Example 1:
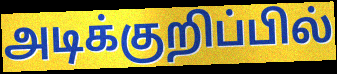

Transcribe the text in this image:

அடிக்குறிப்பில்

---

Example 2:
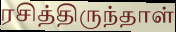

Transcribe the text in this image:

ரசித்திருந்தாள்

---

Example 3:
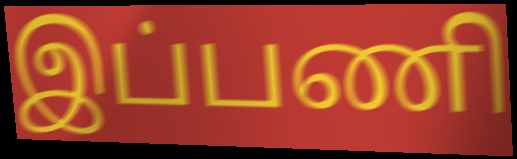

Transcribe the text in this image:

இப்பணி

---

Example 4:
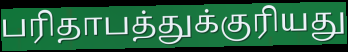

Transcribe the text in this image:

பரிதாபத்துக்குரியது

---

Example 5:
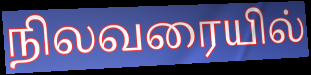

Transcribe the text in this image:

நிலவரையில்